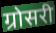
ग्रोसरी